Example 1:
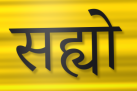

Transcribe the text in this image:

सह्यो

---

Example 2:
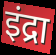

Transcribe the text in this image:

इंद्रा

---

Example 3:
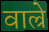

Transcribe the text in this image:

वाल्रे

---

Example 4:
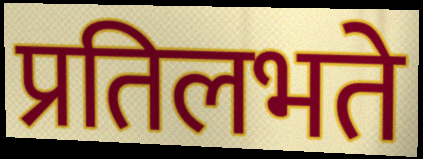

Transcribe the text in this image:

प्रतिलभते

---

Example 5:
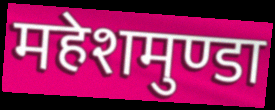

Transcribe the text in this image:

महेशमुण्डा